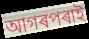
আগৰপৰাই